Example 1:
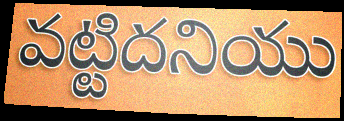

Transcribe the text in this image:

వట్టిదనియు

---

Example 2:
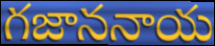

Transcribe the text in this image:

గజాననాయ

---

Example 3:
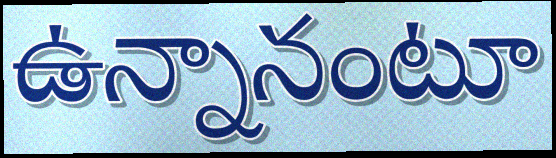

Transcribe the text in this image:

ఉన్నానంటూ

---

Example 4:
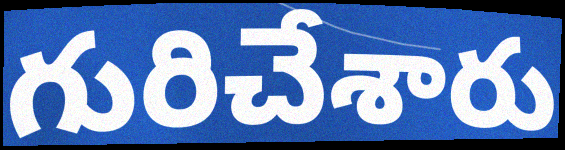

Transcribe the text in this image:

గురిచేశారు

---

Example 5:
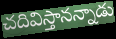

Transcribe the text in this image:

చదివిస్తానన్నాడు